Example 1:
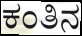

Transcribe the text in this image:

ಕಂತಿನ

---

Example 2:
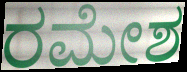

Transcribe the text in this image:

ರಮೇಶ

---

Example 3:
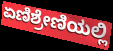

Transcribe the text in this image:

ಏಣಿಶ್ರೇಣಿಯಲ್ಲಿ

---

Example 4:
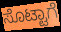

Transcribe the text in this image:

ಸೊಟ್ಟಾಗೆ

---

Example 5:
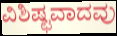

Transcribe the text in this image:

ವಿಶಿಷ್ಟವಾದವು